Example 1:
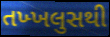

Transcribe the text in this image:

તખ્ખલુસથી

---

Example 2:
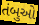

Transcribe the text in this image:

તંબુઓ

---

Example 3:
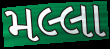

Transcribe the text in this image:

મલ્લા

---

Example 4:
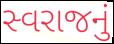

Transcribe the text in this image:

સ્વરાજનું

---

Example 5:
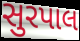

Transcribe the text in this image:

સુરપાલ